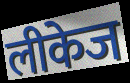
लीकेज